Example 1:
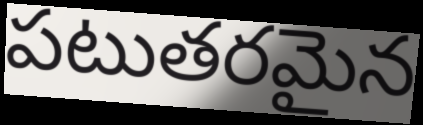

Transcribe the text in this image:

పటుతరమైన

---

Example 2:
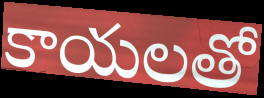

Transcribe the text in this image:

కాయలతో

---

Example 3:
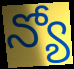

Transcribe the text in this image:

న్యో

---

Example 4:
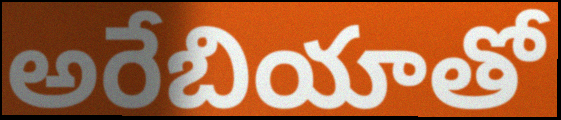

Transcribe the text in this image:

అరేబియాతో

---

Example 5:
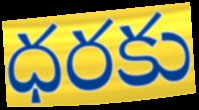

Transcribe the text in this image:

ధరకు